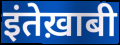
इंतेख़ाबी